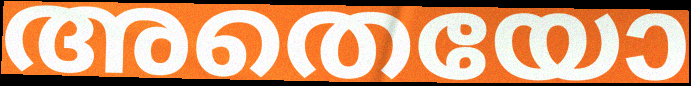
അതെയോ